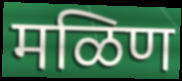
मळिण